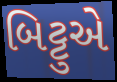
બિટ્ટુએ